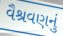
વૈશ્રવણનું